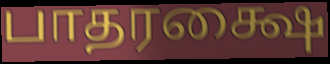
பாதரக்ஷை